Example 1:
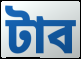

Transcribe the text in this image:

টাব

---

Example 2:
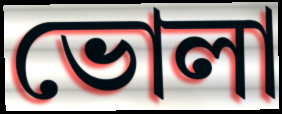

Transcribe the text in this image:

ভোলা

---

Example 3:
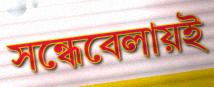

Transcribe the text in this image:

সন্ধেবেলায়ই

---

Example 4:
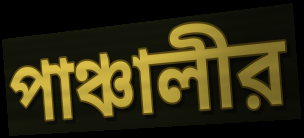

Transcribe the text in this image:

পাঞ্চালীর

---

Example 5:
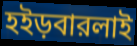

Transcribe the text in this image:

হইড়বারলাই